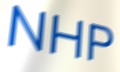
NHP